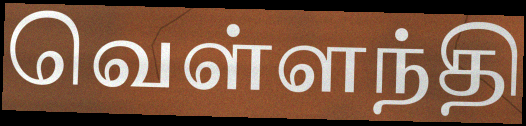
வெள்ளந்தி